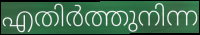
എതിർത്തുനിന്ന